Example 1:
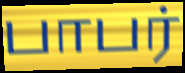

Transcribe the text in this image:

பாபர்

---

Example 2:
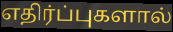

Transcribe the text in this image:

எதிர்ப்புகளால்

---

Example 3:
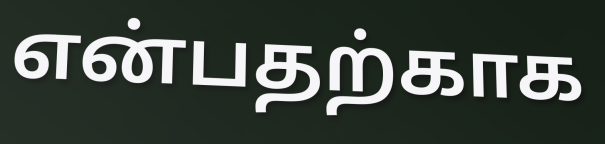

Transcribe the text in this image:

என்பதற்காக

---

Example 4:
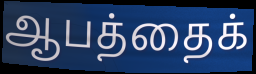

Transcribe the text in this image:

ஆபத்தைக்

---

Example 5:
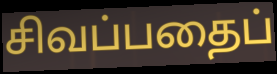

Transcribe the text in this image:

சிவப்பதைப்